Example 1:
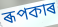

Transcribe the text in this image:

ৰূপকাৰ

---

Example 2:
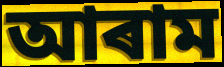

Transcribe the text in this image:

আৰাম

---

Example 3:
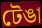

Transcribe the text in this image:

টেঙা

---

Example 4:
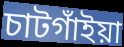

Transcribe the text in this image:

চাটগাঁইয়া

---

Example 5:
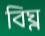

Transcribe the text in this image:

বিঘ্ন